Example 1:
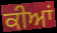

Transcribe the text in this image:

ਕੀਆਂ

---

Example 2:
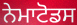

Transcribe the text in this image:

ਨੇਮਾਟੋਡਸ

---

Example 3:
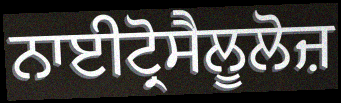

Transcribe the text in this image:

ਨਾਈਟ੍ਰੋਸੈਲੂਲੋਜ਼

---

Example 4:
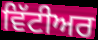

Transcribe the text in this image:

ਵਿੱਟੀਅਰ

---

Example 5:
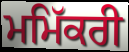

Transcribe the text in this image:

ਮਮਿੱਕਰੀ